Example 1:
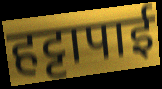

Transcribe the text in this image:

हट्टापाई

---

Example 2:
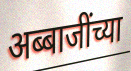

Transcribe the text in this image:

अब्बाजींच्या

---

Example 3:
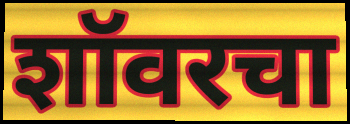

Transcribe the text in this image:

शॉवरचा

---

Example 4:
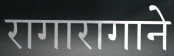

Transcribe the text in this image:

रागारागाने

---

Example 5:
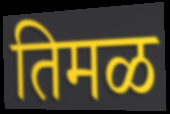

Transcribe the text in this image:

तिमळ